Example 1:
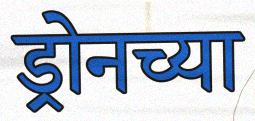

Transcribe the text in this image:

ड्रोनच्या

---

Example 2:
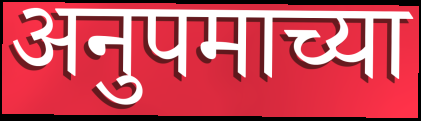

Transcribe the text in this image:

अनुपमाच्या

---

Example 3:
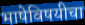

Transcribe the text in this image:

भाषेविषयीचा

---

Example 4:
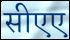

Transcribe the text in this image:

सीएए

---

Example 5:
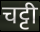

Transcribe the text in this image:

चट्टी